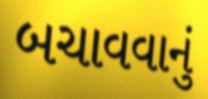
બચાવવાનું